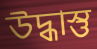
উদ্ধাস্তু